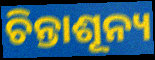
ଚିନ୍ତାଶୂନ୍ୟ